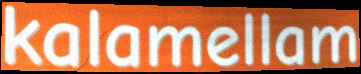
kalamellam